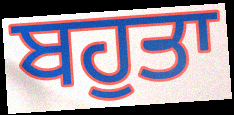
ਬਹੁਤਾ